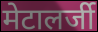
मेटालर्जी